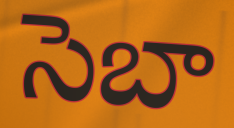
సెబా